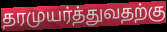
தரமுயர்த்துவதற்கு